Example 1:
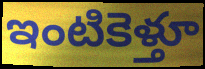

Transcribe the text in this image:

ఇంటికెళ్తూ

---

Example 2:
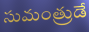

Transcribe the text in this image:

సుమంత్రుడే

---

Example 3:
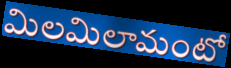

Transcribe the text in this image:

మిలమిలామంటో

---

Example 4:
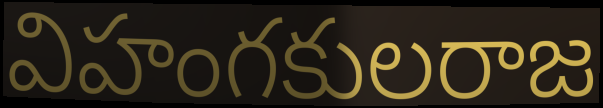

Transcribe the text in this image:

విహంగకులరాజ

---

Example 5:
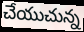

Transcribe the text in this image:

చేయుచున్న